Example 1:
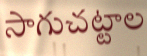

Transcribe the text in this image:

సాగుచట్టాల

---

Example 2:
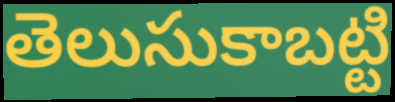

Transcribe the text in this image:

తెలుసుకాబట్టి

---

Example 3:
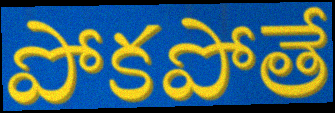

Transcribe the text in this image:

పోకపోతే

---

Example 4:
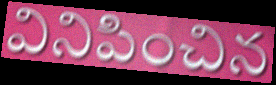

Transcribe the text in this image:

వినిపించిన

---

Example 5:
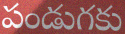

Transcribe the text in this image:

పండుగకు